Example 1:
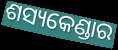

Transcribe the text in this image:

ଶସ୍ୟକେଣ୍ଡାର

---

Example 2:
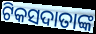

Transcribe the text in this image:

ଟିକସଦାତାଙ୍କ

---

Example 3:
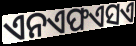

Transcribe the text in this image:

ଏନଏଫଏସଏ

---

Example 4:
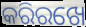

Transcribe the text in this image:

କରିରଖେ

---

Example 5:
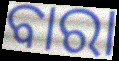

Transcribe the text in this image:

ବାରା